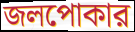
জলপোকার